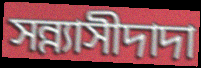
সন্ন্যাসীদাদা